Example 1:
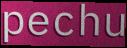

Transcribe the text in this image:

pechu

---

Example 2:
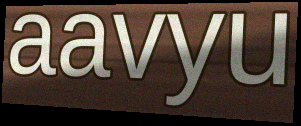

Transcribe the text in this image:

aavyu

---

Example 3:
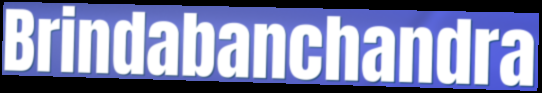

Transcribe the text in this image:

Brindabanchandra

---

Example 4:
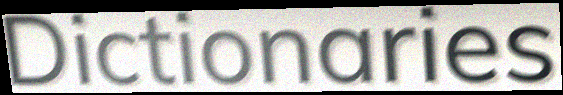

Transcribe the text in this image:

Dictionaries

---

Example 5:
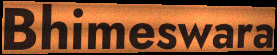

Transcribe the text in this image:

Bhimeswara